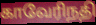
காவேரிநதி